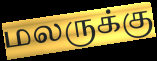
மலருக்கு